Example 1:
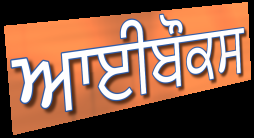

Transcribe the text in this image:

ਆਈਬੌਕਸ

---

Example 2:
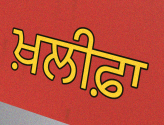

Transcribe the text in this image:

ਖ਼ਲੀਫ਼ਾ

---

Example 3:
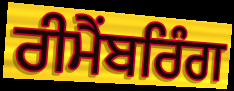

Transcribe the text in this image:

ਰੀਮੈਂਬਰਿੰਗ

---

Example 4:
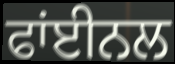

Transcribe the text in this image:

ਫਾਂਈਨਲ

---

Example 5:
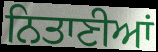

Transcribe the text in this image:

ਨਿਤਾਣੀਆਂ